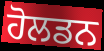
ਹੋਲਡਨ